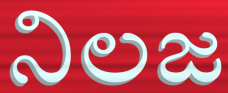
నిలజ